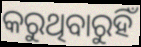
କରୁଥିବାରୁହିଁ